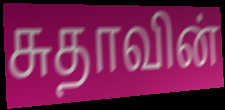
சுதாவின்